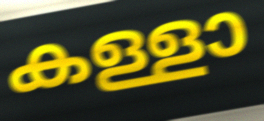
കള്ളാ